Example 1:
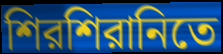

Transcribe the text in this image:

শিরশিরানিতে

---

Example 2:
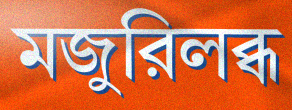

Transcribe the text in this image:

মজুরিলব্ধ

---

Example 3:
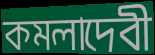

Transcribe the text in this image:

কমলাদেবী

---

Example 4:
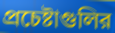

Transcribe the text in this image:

প্রচেষ্টাগুলির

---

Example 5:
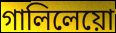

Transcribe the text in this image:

গালিলেয়ো